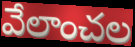
వేలాంచల